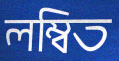
লম্বিত